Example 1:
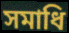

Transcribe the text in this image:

সমাধি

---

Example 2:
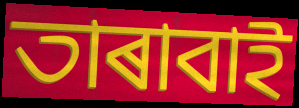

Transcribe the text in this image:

তাৰাবাই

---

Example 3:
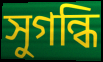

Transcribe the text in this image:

সুগন্ধি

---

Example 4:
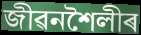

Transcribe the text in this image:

জীৱনশৈলীৰ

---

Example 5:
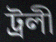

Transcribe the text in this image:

ট্ৰলী